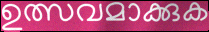
ഉത്സവമാക്കുക